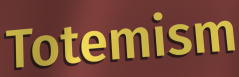
Totemism